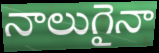
నాలుగైనా